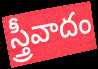
స్త్రీవాదం